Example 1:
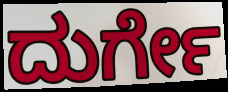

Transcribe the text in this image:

ದುರ್ಗೇ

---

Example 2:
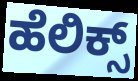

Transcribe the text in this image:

ಹೆಲಿಕ್ಸ್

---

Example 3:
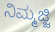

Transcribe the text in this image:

ನಿಮ್ಮಜ್ಜಿ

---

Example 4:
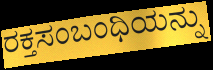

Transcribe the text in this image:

ರಕ್ತಸಂಬಂಧಿಯನ್ನು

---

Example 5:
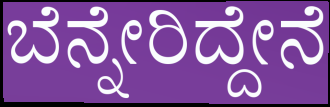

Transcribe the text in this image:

ಬೆನ್ನೇರಿದ್ದೇನೆ